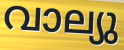
വാല്യു